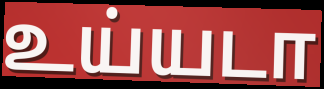
உய்யடா